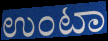
ಉಂಟಾ